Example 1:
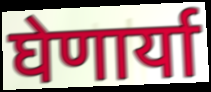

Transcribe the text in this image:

घेणार्या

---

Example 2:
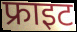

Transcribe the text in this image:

फ्राइट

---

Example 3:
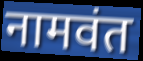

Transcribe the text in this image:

नामवंत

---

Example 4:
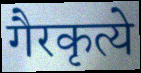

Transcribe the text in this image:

गैरकृत्ये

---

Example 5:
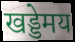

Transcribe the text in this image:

खड्डेमय